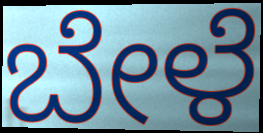
ಬೇಳೆ